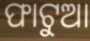
ଫାଟୁଆ